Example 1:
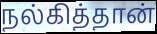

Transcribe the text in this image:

நல்கித்தான்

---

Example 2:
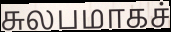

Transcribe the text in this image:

சுலபமாகச்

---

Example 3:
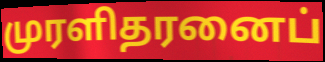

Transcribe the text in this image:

முரளிதரனைப்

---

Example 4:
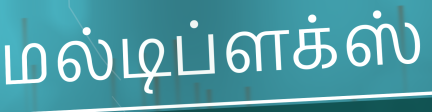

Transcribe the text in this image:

மல்டிப்ளக்ஸ்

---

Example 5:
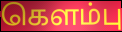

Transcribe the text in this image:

கௌம்பு